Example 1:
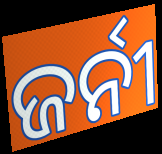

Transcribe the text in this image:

ଜର୍ନୀ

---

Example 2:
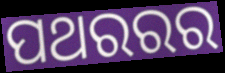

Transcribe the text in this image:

ପଥରରର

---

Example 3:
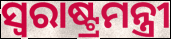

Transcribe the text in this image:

ସ୍ବରାଷ୍ଟ୍ରମନ୍ତ୍ରୀ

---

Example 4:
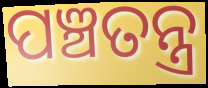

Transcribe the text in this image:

ପଞ୍ଚତନ୍ତ୍ର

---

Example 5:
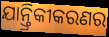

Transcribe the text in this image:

ଯାନ୍ତ୍ରିକୀକରଣର